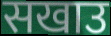
सखाउ